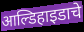
आल्डिहाइडाचे